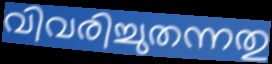
വിവരിച്ചുതന്നതു